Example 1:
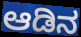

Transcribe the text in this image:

ಆಡಿನ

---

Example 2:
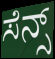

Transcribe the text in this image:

ಸೆನ್ಸ್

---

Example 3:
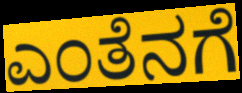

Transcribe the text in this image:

ಎಂತೆನಗೆ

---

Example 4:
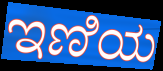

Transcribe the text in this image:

ಇಣಿಯ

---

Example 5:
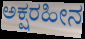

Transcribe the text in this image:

ಅಕ್ಷರಹೀನ